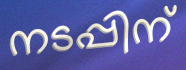
നടപ്പിന്